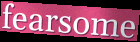
fearsome